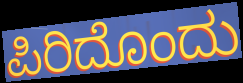
ಪಿರಿದೊಂದು